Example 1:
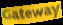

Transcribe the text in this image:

Gateway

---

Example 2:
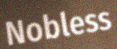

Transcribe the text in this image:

Nobless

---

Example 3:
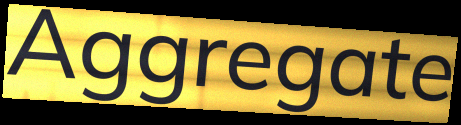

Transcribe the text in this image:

Aggregate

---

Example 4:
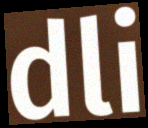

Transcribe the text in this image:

dli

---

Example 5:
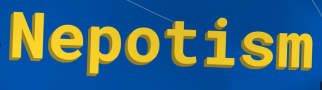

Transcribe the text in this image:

Nepotism